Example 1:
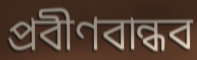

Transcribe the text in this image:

প্রবীণবান্ধব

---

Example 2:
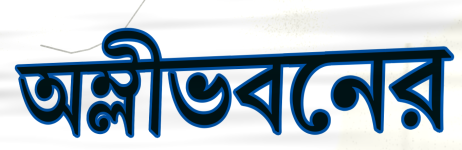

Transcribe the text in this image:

অম্লীভবনের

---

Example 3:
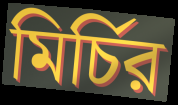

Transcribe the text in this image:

মির্চির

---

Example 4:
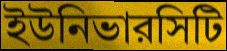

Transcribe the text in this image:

ইউনিভারসিটি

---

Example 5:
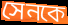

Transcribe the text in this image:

সেনকে